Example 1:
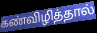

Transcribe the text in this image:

கண்விழித்தால்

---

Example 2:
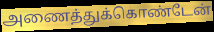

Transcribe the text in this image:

அணைத்துக்கொண்டேன்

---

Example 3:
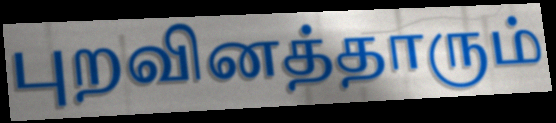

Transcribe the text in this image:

புறவினத்தாரும்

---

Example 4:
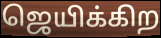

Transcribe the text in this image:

ஜெயிக்கிற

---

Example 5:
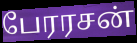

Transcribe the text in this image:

பேரரசன்